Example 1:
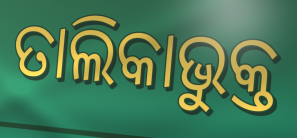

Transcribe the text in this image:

ତାଲିକାଭୁକ୍ତ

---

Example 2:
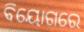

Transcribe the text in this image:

ବିୟୋଗରେ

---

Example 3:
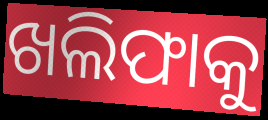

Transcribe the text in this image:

ଖଲିଫାକୁ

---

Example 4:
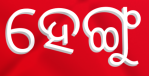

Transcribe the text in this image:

ହେଙ୍ଗୁ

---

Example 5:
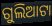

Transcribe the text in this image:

ଗୁଲିଆଟା